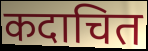
कदाचित